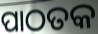
ପାଠତକ